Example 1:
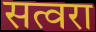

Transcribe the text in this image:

सत्वरा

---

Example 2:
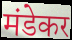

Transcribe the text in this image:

मंडेकर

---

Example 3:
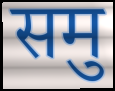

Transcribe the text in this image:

समु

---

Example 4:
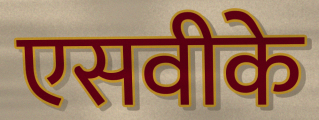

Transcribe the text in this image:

एसवीके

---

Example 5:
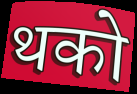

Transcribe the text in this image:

थको